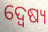
ଦ୍ୱେଷ୍ୟ